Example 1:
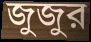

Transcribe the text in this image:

জুজুর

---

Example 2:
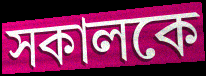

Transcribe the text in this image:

সকালকে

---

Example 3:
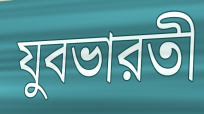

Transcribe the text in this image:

যুবভারতী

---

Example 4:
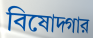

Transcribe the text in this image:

বিষোদ্গার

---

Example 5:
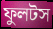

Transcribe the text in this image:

ফুলটস